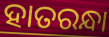
ହାତରନ୍ଧା